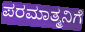
ಪರಮಾತ್ಮನಿಗೆ